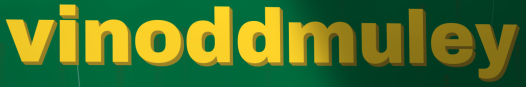
vinoddmuley